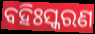
ବହିଃସ୍କରଣ